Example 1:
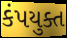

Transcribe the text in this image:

કંપયુક્ત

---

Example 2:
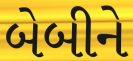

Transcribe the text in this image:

બેબીને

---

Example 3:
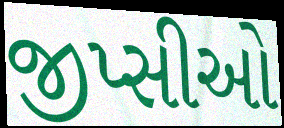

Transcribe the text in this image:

જીપ્સીઓ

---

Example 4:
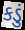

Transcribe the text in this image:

કડું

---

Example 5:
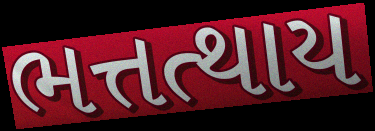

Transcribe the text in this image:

ભત્તત્થાય